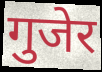
गुजेर